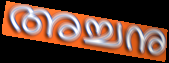
അച്ചനു